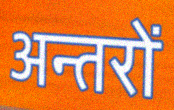
अन्तरों